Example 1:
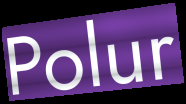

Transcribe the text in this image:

Polur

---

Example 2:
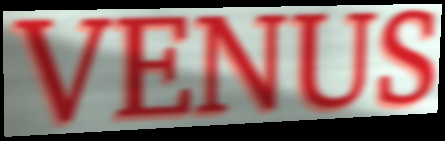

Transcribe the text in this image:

VENUS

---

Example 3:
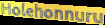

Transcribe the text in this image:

Holehonnuru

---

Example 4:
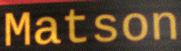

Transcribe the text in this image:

Matson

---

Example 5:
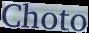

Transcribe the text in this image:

Choto